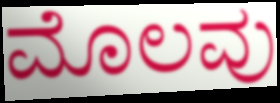
ಮೊಲವು